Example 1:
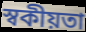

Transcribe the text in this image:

স্বকীয়তা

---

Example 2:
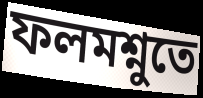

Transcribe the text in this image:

ফলমশ্নুতে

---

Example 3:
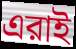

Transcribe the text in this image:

এরাই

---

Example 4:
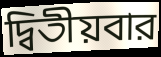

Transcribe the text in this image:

দ্বিতীয়বার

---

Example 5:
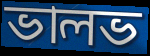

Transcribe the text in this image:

ভালভ